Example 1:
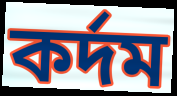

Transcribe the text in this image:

কর্দম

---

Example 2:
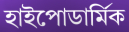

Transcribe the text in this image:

হাইপোডার্মিক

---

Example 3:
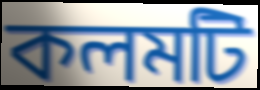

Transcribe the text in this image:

কলমটি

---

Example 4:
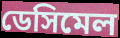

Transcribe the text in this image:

ডেসিমেল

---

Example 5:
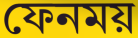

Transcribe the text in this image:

ফেনময়